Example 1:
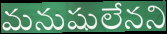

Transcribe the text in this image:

మనుషులేనని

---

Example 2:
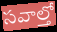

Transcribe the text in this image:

సవాల్తో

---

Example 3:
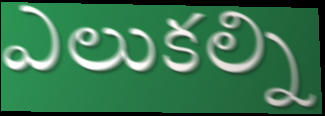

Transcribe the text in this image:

ఎలుకల్ని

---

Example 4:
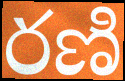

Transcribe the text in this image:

రణి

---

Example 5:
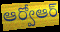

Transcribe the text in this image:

ఆర్వోఆర్